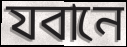
যবানে